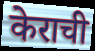
केराची